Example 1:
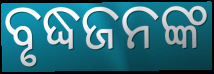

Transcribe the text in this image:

ବୃଦ୍ଧଜନଙ୍କ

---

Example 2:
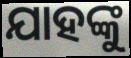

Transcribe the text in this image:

ଯାହଙ୍କୁ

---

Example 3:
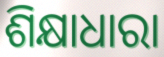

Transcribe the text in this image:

ଶିକ୍ଷାଧାରା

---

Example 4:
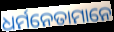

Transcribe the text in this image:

ଧର୍ମନେତାମାନେ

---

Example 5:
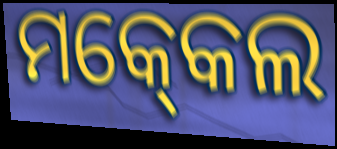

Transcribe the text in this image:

ମକ୍‍କେଲ